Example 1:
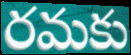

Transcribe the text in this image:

రమకు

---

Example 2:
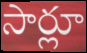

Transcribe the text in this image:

సార్లూ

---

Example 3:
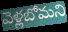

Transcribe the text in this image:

వెళ్లబోమని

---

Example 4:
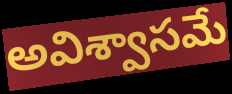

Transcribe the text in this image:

అవిశ్వాసమే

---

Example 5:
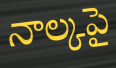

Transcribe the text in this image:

నాల్కపై